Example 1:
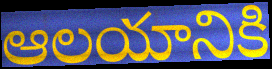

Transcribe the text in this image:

ఆలయానికి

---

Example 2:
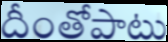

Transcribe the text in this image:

దీంతోపాటు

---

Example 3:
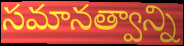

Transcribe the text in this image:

సమానత్వాన్ని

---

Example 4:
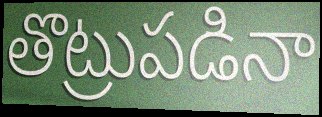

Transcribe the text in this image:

తొట్రుపడినా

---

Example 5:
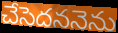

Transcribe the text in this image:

చేసెదననెను